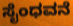
ಸೈಂಧವನೆ